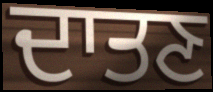
ਦਾਤਣ